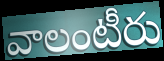
వాలంటీరు